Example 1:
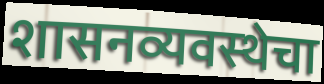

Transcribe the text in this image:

शासनव्यवस्थेचा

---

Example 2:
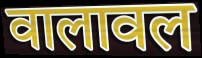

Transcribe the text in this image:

वालावल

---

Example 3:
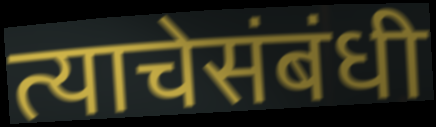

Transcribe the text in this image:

त्याचेसंबंधी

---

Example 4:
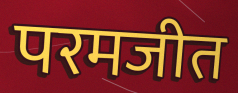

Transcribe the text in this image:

परमजीत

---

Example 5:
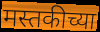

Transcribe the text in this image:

मस्तकीच्या